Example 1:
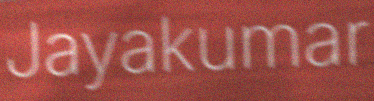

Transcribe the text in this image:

Jayakumar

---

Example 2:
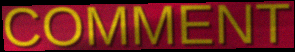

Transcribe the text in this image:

COMMENT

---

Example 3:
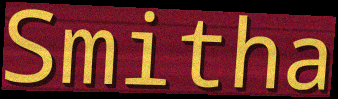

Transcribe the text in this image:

Smitha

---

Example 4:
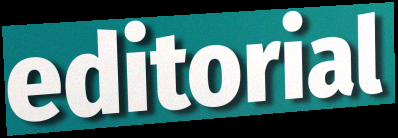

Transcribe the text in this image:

editorial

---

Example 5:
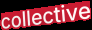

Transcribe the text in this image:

collective